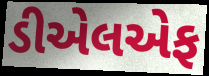
ડીએલએફ